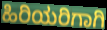
ಹಿರಿಯರಿಗಾಗಿ